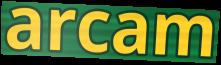
arcam